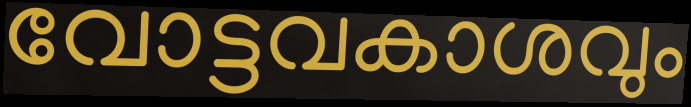
വോട്ടവകാശവും